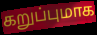
கறுப்புமாக